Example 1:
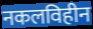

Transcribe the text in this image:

नकलविहीन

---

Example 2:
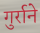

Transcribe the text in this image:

गुर्राने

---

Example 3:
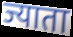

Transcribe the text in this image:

ज्याता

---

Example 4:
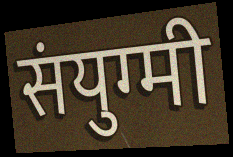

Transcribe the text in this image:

संयुग्मी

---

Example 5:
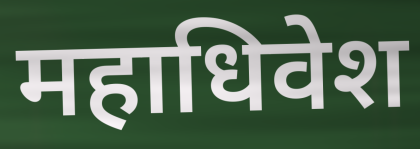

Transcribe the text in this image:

महाधिवेश